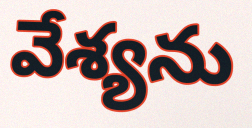
వేశ్యను